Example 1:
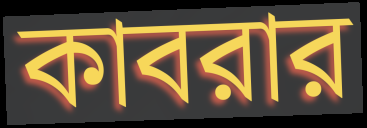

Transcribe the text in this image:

কাবরার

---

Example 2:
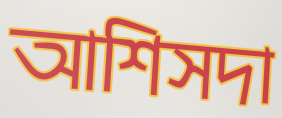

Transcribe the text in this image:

আশিসদা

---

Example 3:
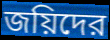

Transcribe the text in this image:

জয়িদের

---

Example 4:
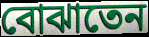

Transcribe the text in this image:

বোঝাতেন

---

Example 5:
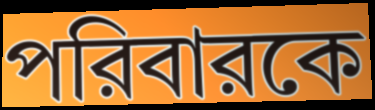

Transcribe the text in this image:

পরিবারকে